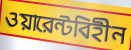
ওয়ারেন্টবিহীন